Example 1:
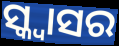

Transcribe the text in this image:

ସ୍କ୍ବାସର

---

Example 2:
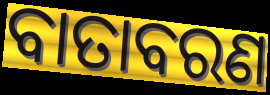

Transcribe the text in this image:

ବାତାବରଣ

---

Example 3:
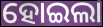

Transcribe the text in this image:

ହୋଇଲା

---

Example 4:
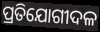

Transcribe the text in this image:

ପ୍ରତିଯୋଗୀଦଳ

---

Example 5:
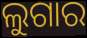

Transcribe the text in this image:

ଲୁଗାର